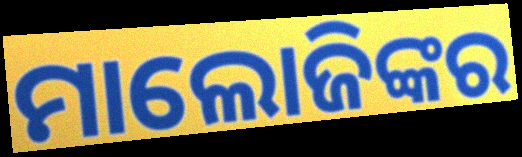
ମାଲୋଜିଙ୍କର